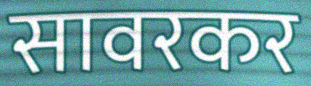
सावरकर